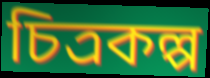
চিত্ৰকল্প